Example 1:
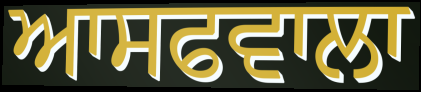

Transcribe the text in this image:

ਆਸਫਵਾਲਾ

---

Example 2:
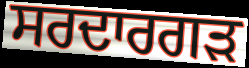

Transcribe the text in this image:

ਸਰਦਾਰਗੜ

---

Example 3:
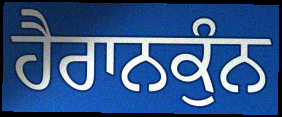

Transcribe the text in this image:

ਹੈਰਾਨਕੁੰਨ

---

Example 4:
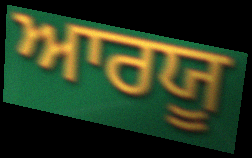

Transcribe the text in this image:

ਆਰਯੂ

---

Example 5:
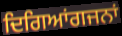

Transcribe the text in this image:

ਦਿਗਿਆਂਗਜਨਾਂ